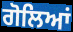
ਗੋਲਿਆਂ